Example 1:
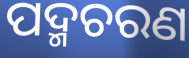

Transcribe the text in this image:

ପଦ୍ମଚରଣ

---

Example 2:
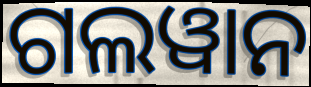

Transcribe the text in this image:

ଗଲୱାନ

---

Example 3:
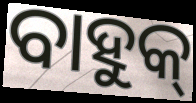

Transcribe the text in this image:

ବାହୁକ୍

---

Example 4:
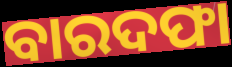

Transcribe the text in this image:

ବାରଦଫା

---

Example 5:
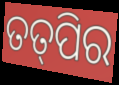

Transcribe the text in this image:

ତତ୍‌ପିର